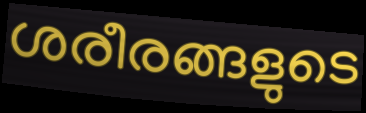
ശരീരങ്ങളുടെ